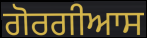
ਗੋਰਗੀਆਸ